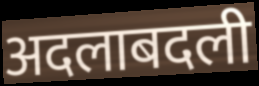
अदलाबदली